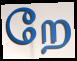
றே